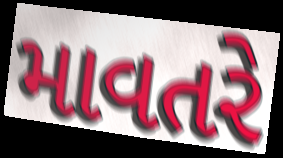
માવતરે